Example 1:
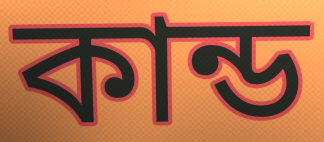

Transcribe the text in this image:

কান্ড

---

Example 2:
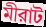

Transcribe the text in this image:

মীরাট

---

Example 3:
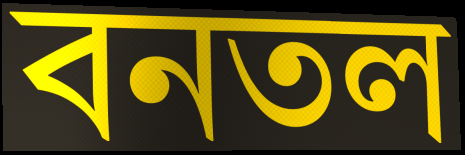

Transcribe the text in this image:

বনতল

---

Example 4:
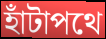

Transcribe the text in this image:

হাঁটাপথে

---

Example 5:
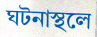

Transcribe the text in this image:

ঘটনাস্থলে